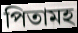
পিতামহ